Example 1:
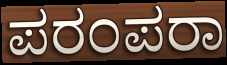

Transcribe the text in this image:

ಪರಂಪರಾ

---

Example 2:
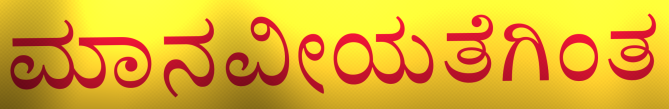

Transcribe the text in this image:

ಮಾನವೀಯತೆಗಿಂತ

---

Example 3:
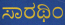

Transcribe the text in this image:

ಸಾರಥಿಂ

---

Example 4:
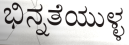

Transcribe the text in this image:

ಭಿನ್ನತೆಯುಳ್ಳ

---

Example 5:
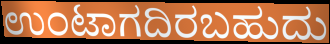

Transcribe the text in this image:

ಉಂಟಾಗದಿರಬಹುದು